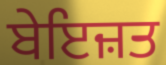
ਬੇਇਜ਼ਤ